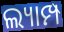
ଲ୍ୟାମ୍ପ